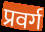
प्रवर्ग